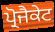
ਪ੍ਰੋਜੈਕੇਟ